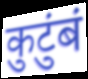
कुटुंबं